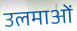
उलमाओं